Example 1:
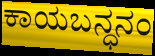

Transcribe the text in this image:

ಕಾಯಬನ್ಧನಂ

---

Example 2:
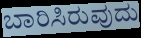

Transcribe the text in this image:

ಬಾರಿಸಿರುವುದು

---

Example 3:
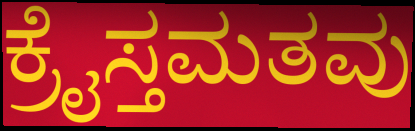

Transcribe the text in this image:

ಕ್ರೈಸ್ತಮತವು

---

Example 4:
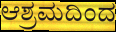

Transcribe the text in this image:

ಆಶ್ರಮದಿಂದ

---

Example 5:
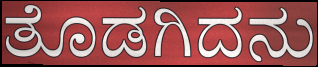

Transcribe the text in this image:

ತೊಡಗಿದನು